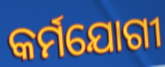
କର୍ମଯୋଗୀ